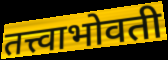
तत्त्वाभोवती